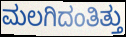
ಮಲಗಿದಂತಿತ್ತು